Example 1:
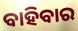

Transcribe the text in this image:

ବାହିବାର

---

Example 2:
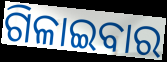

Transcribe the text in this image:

ଗିଳାଇବାର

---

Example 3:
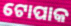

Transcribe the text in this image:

ଟୋପାକ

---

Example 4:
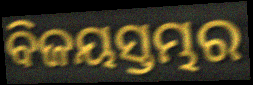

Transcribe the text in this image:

ବିଜୟସ୍ତମ୍ଭର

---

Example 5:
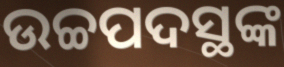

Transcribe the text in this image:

ଉଚ୍ଚପଦସ୍ଥଙ୍କ